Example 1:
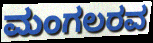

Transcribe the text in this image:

ಮಂಗಲರವ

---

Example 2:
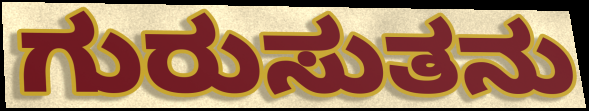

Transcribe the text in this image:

ಗುರುಸುತನು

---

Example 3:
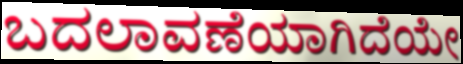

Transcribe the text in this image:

ಬದಲಾವಣೆಯಾಗಿದೆಯೇ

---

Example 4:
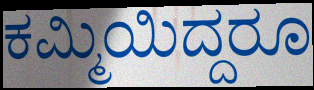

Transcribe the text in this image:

ಕಮ್ಮಿಯಿದ್ದರೂ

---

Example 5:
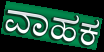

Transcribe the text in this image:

ವಾಹಕ